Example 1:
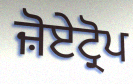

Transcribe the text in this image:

ਜ਼ੋਏਟ੍ਰੋਪ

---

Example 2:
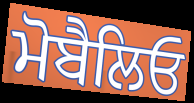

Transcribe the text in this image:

ਮੋਬੈਲਿਓ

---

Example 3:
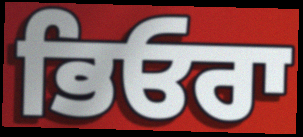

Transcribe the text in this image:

ਭਿਓਰਾ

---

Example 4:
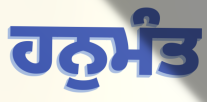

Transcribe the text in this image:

ਹਨੁਮੰਤ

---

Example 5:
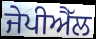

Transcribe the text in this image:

ਜੇਪੀਐੱਲ